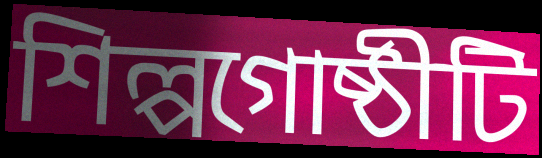
শিল্পগোষ্ঠীটি